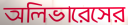
অলিভারেসের